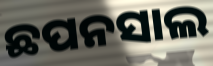
ଛପନସାଲ